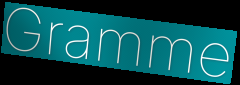
Gramme